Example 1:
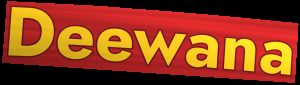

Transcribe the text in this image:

Deewana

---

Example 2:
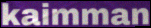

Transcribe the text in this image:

kaimman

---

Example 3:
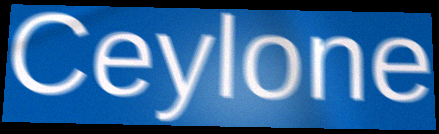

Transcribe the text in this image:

Ceylone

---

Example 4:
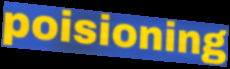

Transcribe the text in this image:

poisioning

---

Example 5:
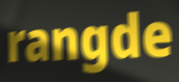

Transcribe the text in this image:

rangde